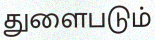
துளைபடும்